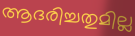
ആദരിച്ചതുമില്ല